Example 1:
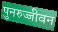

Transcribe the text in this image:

पुनरुज्जीवन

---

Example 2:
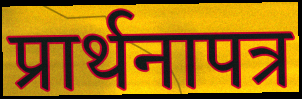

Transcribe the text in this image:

प्रार्थनापत्र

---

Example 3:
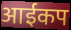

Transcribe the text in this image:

आईकप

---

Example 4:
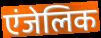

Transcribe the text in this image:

एंजेलिक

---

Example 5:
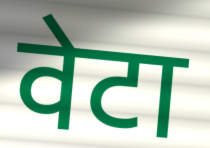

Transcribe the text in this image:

वेटा